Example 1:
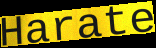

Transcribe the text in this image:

Harate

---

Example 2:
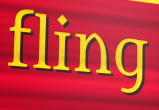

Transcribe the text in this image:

fling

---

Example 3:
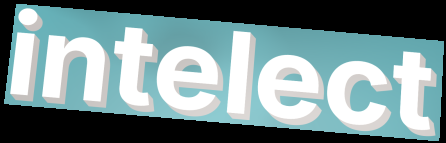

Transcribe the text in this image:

intelect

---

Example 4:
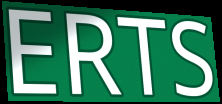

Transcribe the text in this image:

ERTS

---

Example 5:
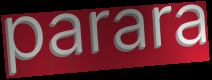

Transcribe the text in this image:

parara